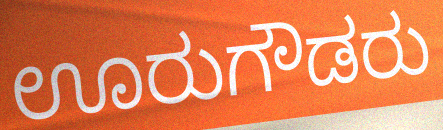
ಊರುಗೌಡರು